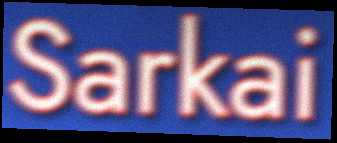
Sarkai